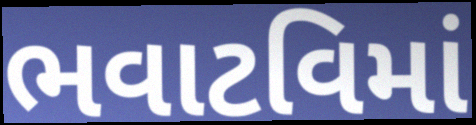
ભવાટવિમાં